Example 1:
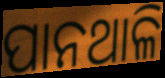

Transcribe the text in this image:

ପାନଥାଳି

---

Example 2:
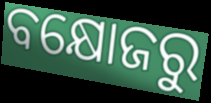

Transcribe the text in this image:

ବକ୍ଷୋଜରୁ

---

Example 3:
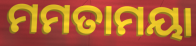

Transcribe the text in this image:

ମମତାମୟା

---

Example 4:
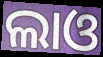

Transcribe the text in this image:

ଲାଓ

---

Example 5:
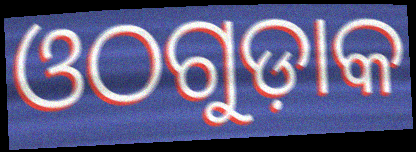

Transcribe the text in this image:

ଓଠଗୁଡ଼ାକ